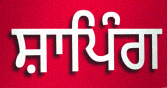
ਸ਼ਾਪਿੰਗ